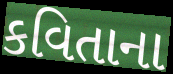
કવિતાના